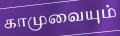
காமுவையும்